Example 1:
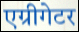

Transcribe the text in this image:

एग्रीगेटर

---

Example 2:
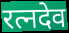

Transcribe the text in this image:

रत्नदेव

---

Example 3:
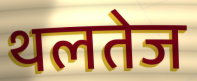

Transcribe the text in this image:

थलतेज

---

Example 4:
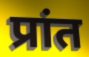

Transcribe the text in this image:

प्रांत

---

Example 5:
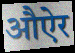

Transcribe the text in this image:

औऐर